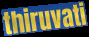
thiruvati